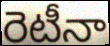
రెటీనా